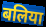
बलिया